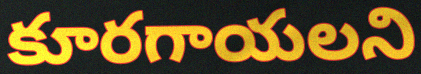
కూరగాయలని